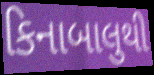
કિનાબાલુથી